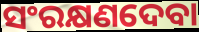
ସଂରକ୍ଷଣଦେବା